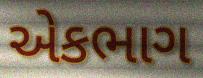
એકભાગ